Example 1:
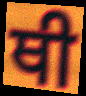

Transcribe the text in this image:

ਥੀ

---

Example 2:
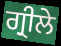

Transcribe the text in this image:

ਗ੍ਰੀਲੇ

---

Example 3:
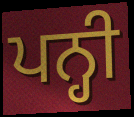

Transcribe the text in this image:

ਪਨ੍ਹੀ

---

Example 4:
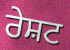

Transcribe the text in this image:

ਰੇਸ਼ਟ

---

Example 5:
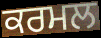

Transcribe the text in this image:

ਕਰਮਲ